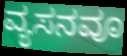
ವ್ಯಸನವೂ